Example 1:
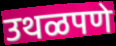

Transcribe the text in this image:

उथळपणे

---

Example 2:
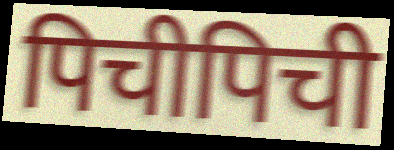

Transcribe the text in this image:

पिचीपिची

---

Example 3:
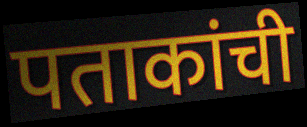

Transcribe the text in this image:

पताकांची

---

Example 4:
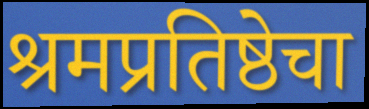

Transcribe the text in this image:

श्रमप्रतिष्ठेचा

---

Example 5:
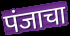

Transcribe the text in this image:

पंजाचा